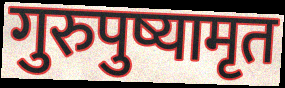
गुरुपुष्यामृत